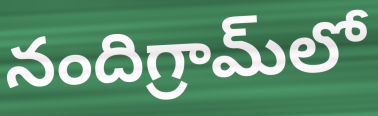
నందిగ్రామ్‌లో